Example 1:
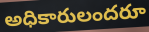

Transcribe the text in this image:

అధికారులందరూ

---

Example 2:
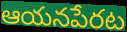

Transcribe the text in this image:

ఆయనపేరట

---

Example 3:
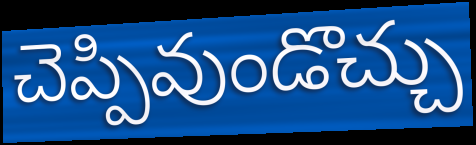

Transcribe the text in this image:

చెప్పివుండొచ్చు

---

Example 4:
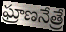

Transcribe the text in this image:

ఘ్రాణనేత్రే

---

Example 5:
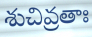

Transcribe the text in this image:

శుచివ్రతాః